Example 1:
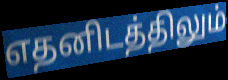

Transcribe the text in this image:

எதனிடத்திலும்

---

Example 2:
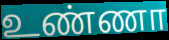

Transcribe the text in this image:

உண்ணா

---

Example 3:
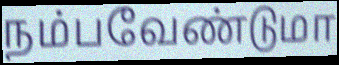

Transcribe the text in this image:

நம்பவேண்டுமா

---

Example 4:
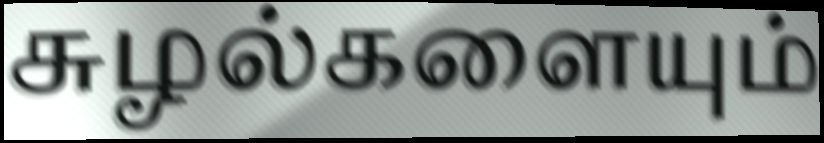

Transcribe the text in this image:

சுழல்களையும்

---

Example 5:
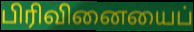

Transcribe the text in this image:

பிரிவினையைப்